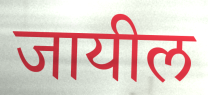
जायील